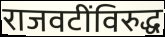
राजवटींविरुद्ध